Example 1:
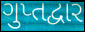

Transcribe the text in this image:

ગુપ્તદ્વાર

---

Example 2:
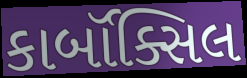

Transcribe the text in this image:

કાર્બૉક્સિલ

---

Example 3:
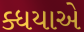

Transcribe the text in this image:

ક્ધયાએ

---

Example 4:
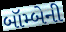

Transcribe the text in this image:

બૉમ્બેની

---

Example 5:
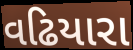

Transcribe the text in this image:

વઢિયારા